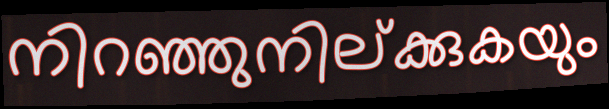
നിറഞ്ഞുനില്ക്കുകയും